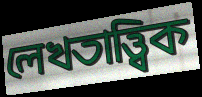
লেখতাত্ত্বিক